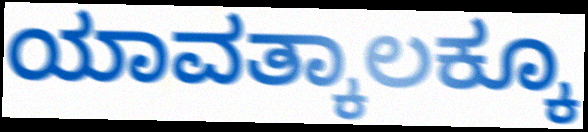
ಯಾವತ್ಕಾಲಕ್ಕೂ